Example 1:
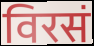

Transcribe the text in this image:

विरसं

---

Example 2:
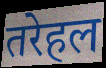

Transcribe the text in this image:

तरेहल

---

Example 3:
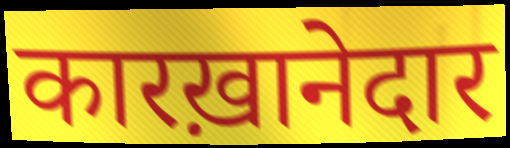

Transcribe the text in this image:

कारख़ानेदार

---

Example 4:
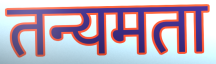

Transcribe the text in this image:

तन्यमता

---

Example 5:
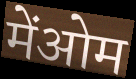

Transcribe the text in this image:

मेंओम